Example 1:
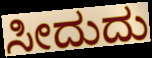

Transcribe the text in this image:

ಸೀದುದು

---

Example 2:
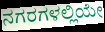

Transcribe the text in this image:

ನಗರಗಳಲ್ಲಿಯೇ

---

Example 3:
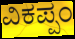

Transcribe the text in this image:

ವಿಕಪ್ಪಂ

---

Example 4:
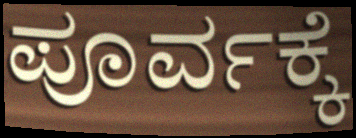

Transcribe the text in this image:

ಪೂರ್ವಕ್ಕೆ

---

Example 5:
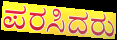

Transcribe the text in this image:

ಪರಸಿದರು